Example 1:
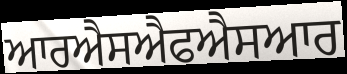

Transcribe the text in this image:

ਆਰਐਸਐਫਐਸਆਰ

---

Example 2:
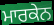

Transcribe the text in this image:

ਮਾਰਕੇਨ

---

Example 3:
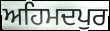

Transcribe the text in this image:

ਅਹਿਮਦਪੁਰ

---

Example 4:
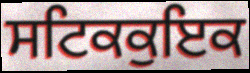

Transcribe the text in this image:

ਸਟਿਕਕੁਇਕ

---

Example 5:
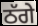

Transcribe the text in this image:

ਠੱਗੇ